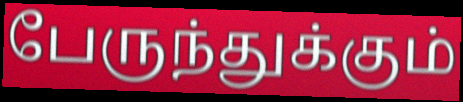
பேருந்துக்கும்